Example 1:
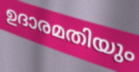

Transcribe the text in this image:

ഉദാരമതിയും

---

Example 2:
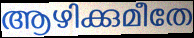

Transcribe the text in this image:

ആഴിക്കുമീതേ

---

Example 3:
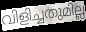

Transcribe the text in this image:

വിളിച്ചതുമില്ല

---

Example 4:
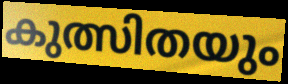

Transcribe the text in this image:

കുത്സിതയും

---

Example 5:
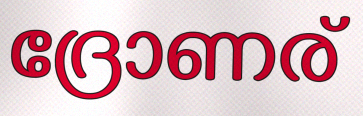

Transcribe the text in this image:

ദ്രോണര്